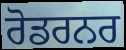
ਰੋਡਰਨਰ